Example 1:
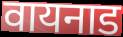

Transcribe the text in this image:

वायनाड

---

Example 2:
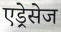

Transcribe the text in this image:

एड्रेसेज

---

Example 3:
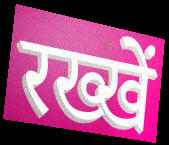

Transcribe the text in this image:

रख्खें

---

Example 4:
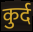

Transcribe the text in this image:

कुर्द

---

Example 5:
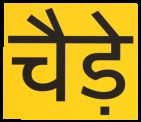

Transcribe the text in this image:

चैड़े